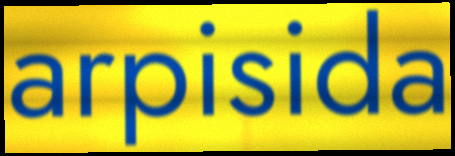
arpisida